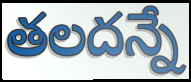
తలదన్నే